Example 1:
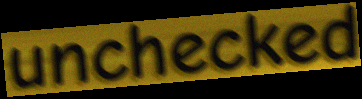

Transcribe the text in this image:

unchecked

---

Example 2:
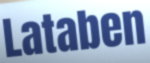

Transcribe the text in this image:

Lataben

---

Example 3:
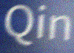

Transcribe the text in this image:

Qin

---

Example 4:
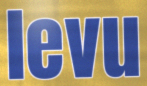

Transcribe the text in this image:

levu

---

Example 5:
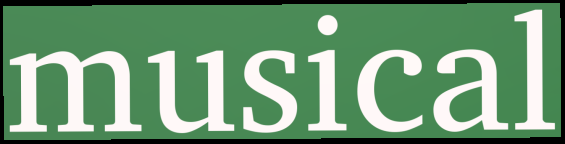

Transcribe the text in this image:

musical